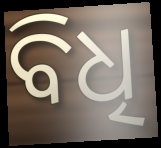
ବିଧି